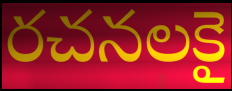
రచనలకై